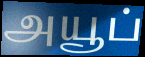
அயூப்